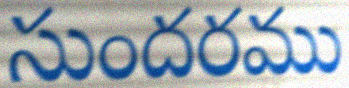
సుందరము